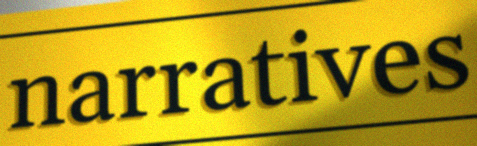
narratives